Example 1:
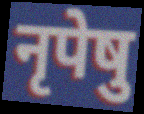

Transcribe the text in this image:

नृपेषु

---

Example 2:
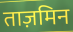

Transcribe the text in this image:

ताज़मिन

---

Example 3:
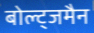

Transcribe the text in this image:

बोल्ट्जमैन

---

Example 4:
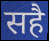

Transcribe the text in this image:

सहै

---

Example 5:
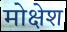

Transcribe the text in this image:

मोक्षेश